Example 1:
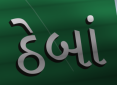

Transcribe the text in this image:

ઠેબાં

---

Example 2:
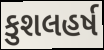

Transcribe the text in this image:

કુશલહર્ષ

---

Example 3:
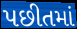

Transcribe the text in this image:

પછીતમાં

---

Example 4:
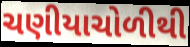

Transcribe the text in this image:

ચણીયાચોળીથી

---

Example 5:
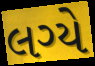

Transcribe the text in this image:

લગ્યે